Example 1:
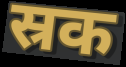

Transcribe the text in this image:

स्रक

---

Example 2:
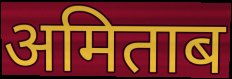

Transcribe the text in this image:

अमिताब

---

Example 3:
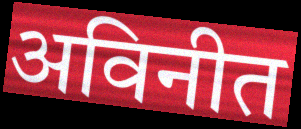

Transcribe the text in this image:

अविनीत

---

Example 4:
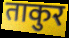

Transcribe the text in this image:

ताकुर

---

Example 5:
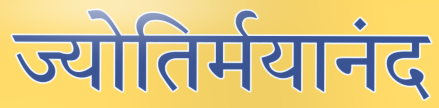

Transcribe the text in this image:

ज्योतिर्मयानंद